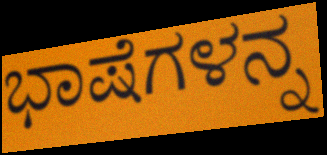
ಭಾಷೆಗಳನ್ನ